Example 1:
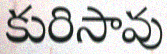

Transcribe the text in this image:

కురిసావు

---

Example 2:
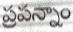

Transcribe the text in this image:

ప్రపన్నాం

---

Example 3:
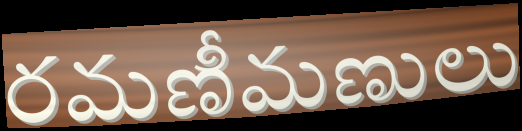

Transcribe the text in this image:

రమణీమణులు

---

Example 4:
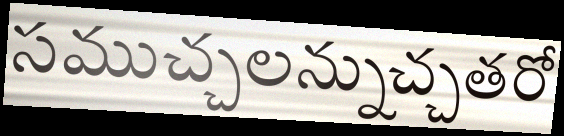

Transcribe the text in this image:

సముచ్చలన్నుచ్చతరో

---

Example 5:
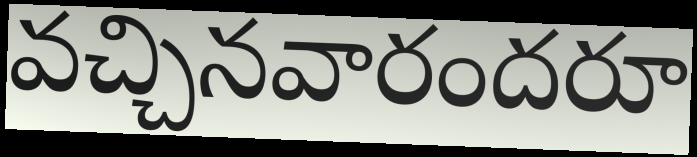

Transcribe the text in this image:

వచ్చినవారందరూ